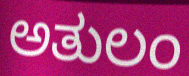
ಅತುಲಂ